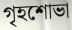
গৃহশোভা